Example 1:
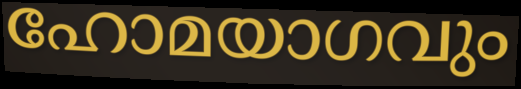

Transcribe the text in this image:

ഹോമയാഗവും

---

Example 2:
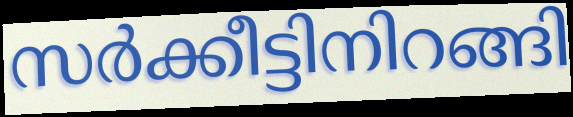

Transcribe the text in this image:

സർക്കീട്ടിനിറങ്ങി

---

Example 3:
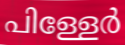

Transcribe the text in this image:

പിള്ളേർ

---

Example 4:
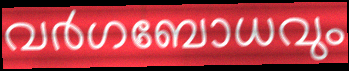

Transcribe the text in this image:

വർഗബോധവും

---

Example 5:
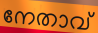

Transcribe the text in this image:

നേതാവ്